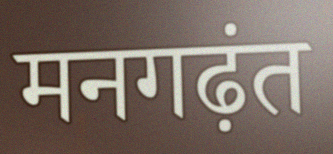
मनगढ़ंत